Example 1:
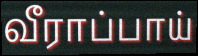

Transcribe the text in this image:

வீராப்பாய்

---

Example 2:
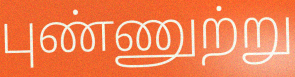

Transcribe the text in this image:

புண்ணுற்று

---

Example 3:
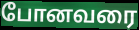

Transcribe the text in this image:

போனவரை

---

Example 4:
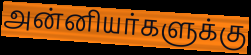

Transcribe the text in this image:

அன்னியர்களுக்கு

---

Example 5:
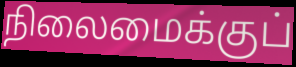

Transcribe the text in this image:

நிலைமைக்குப்